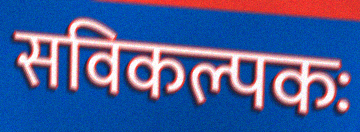
सविकल्पकः